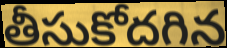
తీసుకోదగిన